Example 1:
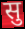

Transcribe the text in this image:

सु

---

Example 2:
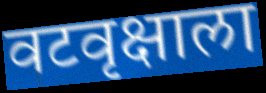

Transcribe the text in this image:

वटवृक्षाला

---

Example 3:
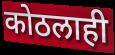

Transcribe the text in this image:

कोठलाही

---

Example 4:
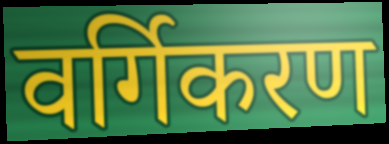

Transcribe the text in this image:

वर्गिकरण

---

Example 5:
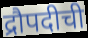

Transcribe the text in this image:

द्रौपदीची